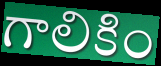
గాలికిం